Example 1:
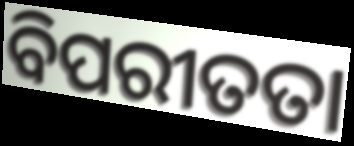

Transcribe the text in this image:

ବିପରୀତତା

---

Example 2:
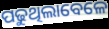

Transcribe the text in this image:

ପଢୁଥିଲାବେଳେ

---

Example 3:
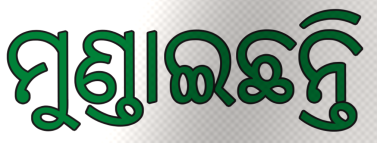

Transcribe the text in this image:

ମୁଣ୍ଡାଇଛନ୍ତି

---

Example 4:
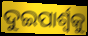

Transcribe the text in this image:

ଦୁଇପାର୍ଶ୍ବକୁ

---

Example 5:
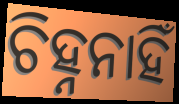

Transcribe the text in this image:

ଚିହ୍ନନାହିଁ